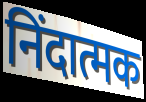
निंदात्मक